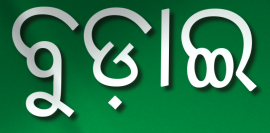
ବୁଡ଼ାଇ